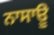
ਨਾਸਾਊ